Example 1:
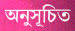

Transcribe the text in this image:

অনুসূচিত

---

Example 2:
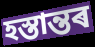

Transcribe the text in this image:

হস্তান্তৰ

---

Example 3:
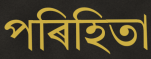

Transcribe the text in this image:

পৰিহিতা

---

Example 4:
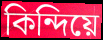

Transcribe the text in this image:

কিন্দিয়ে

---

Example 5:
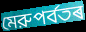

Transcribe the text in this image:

মেৰুপৰ্বতৰ